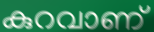
കുറവാണ്